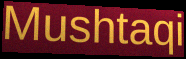
Mushtaqi